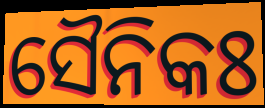
ସୈନିକଃ